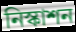
নিস্কাশন